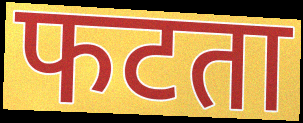
फटता